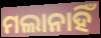
ମଲାନାହିଁ